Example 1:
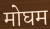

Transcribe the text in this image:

मोघम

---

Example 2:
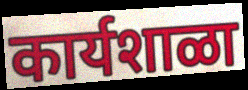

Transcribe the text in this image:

कार्यशाळा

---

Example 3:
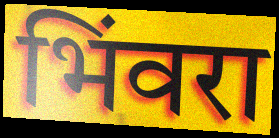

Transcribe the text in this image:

भिंवरा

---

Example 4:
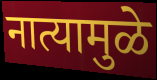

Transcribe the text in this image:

नात्यामुळे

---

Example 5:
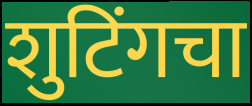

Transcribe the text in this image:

शुटिंगचा